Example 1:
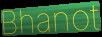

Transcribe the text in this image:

Bhanot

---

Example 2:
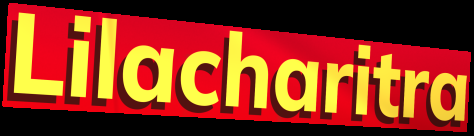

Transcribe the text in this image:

Lilacharitra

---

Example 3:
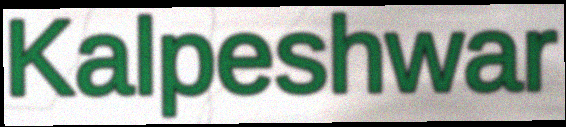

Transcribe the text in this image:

Kalpeshwar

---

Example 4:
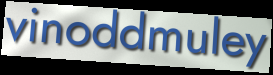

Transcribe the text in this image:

vinoddmuley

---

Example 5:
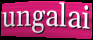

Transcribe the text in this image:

ungalai